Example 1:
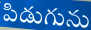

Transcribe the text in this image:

పిడుగును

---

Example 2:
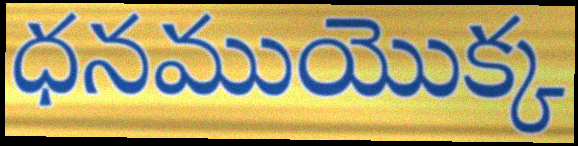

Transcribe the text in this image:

ధనముయొక్క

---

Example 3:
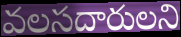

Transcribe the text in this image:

వలసదారులని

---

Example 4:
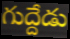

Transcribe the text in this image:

గుద్దేడు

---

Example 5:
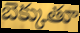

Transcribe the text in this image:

బెక్కుతూ